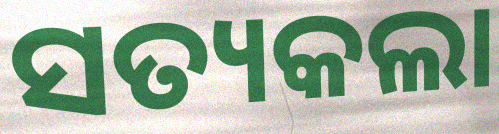
ସତ୍ୟକଲା